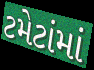
ટમેટાંમાં